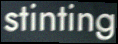
stinting